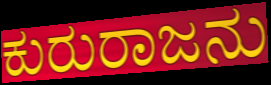
ಕುರುರಾಜನು